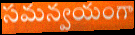
సమన్వయంగా